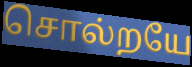
சொல்றயே